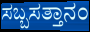
ಸಬ್ಬಸತ್ತಾನಂ